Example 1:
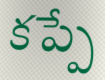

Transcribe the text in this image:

కప్పే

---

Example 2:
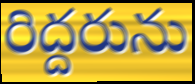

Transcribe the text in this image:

రిద్దరును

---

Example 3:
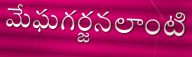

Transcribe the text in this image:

మేఘగర్జనలాంటి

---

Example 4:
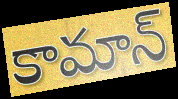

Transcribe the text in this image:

కామాన్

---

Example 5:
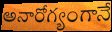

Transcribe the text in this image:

అనారోగ్యంగానే